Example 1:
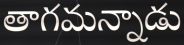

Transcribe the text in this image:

తాగమన్నాడు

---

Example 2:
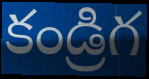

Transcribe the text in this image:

కండ్రిగ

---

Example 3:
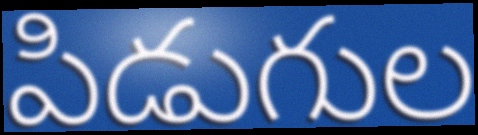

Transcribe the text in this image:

పిడుగుల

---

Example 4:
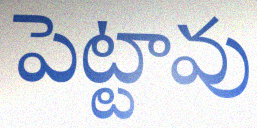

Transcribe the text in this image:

పెట్టావు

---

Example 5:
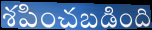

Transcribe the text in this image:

శపించబడింది